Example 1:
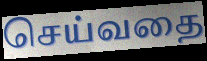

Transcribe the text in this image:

செய்வதை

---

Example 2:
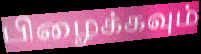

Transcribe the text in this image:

பிழைக்கவும்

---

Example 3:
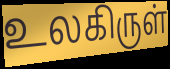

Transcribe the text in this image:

உலகிருள்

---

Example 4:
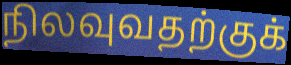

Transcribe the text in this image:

நிலவுவதற்குக்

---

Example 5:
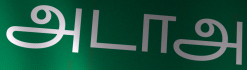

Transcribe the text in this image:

அடாஅ